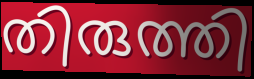
തിരുത്തി